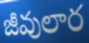
జీవులార